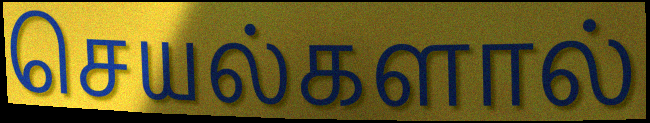
செயல்களால்